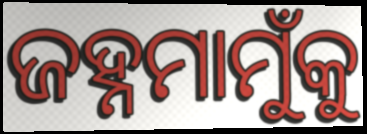
ଜହ୍ନମାମୁଁକୁ